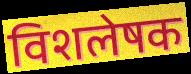
विशलेषक